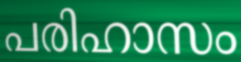
പരിഹാസം